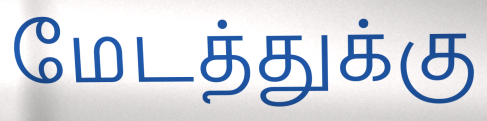
மேடத்துக்கு